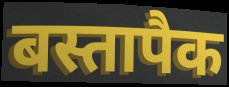
बस्तापैक